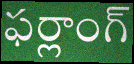
ఫర్లాంగ్